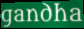
gandha